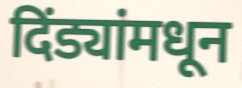
दिंड्यांमधून